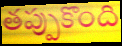
తప్పుకొంది